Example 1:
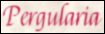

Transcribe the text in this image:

Pergularia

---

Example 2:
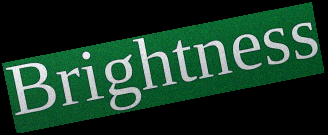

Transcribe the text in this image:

Brightness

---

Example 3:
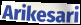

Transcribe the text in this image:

Arikesari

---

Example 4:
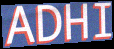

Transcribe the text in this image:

ADHI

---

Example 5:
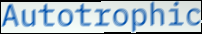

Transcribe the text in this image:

Autotrophic